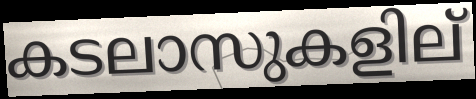
കടലാസുകളില്